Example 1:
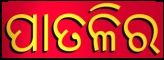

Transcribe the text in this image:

ପାତଳିର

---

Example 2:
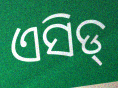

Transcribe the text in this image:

ଏସିଡ୍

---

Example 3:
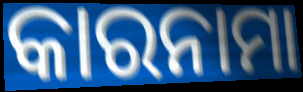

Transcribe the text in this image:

କାରନାମା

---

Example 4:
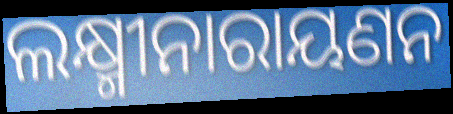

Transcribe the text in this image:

ଲକ୍ଷ୍ମୀନାରାୟଣନ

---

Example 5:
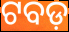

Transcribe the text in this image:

ଟବଡ଼